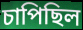
চাপিছিল